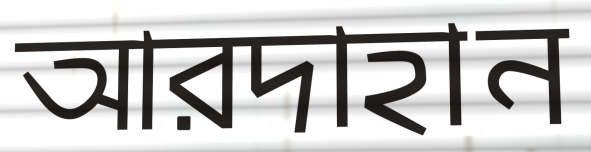
আরদাহান